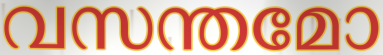
വസന്തമോ